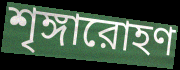
শৃঙ্গারোহণ